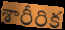
శారీరిక